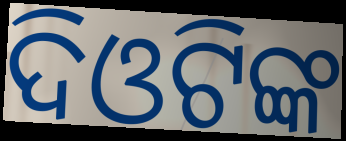
ଦିଓଟିଙ୍କ